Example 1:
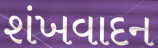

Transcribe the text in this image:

શંખવાદન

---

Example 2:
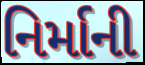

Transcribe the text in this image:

નિર્માની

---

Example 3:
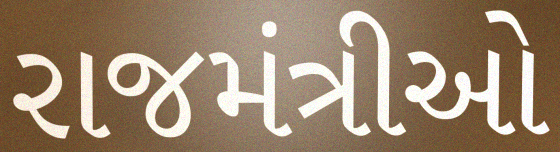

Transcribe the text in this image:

રાજમંત્રીઓ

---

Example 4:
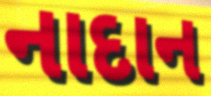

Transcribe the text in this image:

નાદાન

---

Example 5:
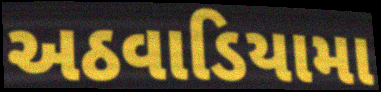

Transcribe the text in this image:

અઠવાડિયામા